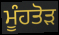
ਮੂੰਹਤੋੜ